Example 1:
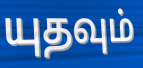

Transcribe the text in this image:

யுதவும்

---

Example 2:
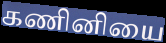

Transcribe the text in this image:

கணினியை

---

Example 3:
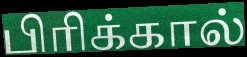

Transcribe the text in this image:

பிரிக்கால்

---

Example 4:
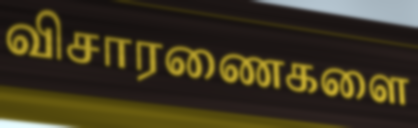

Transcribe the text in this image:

விசாரணைகளை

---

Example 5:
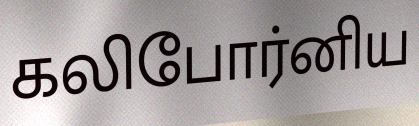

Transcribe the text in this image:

கலிபோர்னிய